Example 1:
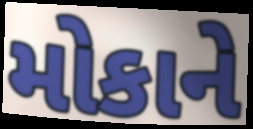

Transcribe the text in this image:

મોકાને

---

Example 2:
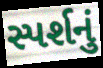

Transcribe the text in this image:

સ્પર્શનું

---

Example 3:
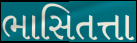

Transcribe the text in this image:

ભાસિતત્તા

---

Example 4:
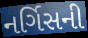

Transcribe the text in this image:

નર્ગિસની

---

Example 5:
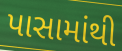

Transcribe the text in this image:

પાસામાંથી